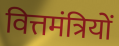
वित्तमंत्रियों